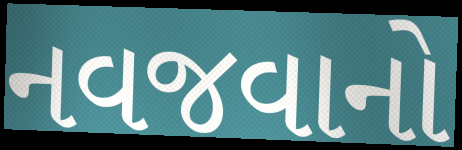
નવજવાનો